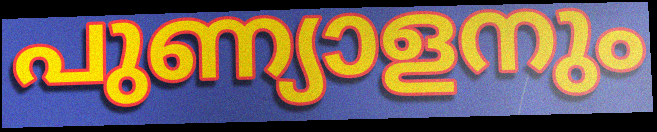
പുണ്യാളനും